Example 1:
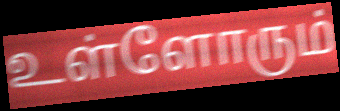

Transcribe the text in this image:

உள்ளோரும்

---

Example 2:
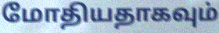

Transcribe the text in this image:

மோதியதாகவும்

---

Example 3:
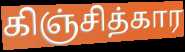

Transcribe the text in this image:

கிஞ்சித்கார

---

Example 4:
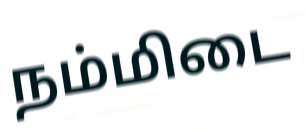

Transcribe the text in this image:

நம்மிடை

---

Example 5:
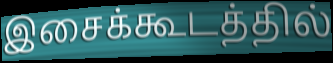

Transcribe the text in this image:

இசைக்கூடத்தில்